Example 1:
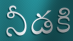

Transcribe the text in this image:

నీడకి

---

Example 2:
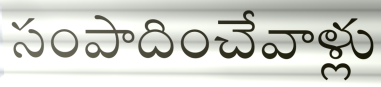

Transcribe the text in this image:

సంపాదించేవాళ్లు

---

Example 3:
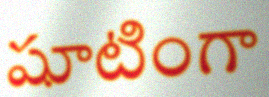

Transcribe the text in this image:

షూటింగా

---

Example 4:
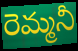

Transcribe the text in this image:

రెమ్మనీ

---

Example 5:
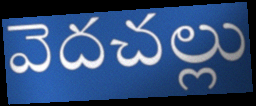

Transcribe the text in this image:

వెదచల్లు